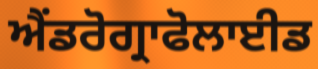
ਐਂਡਰੋਗ੍ਰਾਫੋਲਾਈਡ